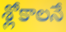
శ్లోకాలనే